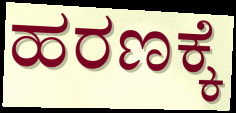
ಹರಣಕ್ಕೆ